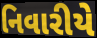
નિવારીયે